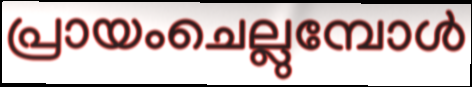
പ്രായംചെല്ലുമ്പോൾ